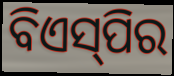
ବିଏସ୍‌ପିର